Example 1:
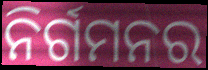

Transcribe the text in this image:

ନିର୍ଗମନର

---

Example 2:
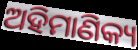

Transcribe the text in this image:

ଅହିମାଣିକ୍ୟ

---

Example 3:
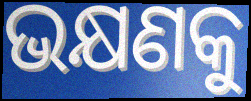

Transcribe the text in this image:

ଭକ୍ଷଣକୁ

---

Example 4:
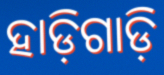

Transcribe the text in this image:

ହାଡ଼ିଗାଡ଼ି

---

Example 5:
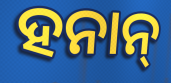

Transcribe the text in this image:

ହନାନ୍